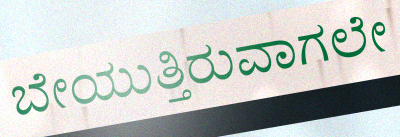
ಬೇಯುತ್ತಿರುವಾಗಲೇ